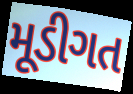
મૂડીગત